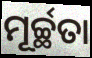
ମୂର୍ଚ୍ଛତା